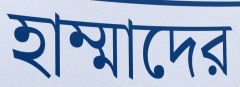
হাম্মাদের